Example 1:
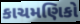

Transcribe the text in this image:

કાચમણિકો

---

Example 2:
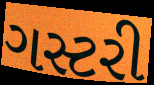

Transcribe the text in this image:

ગસ્ટરી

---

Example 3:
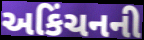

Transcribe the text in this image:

અકિંચનની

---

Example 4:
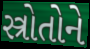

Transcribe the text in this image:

સ્ત્રોતોને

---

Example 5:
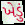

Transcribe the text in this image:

ખેડું